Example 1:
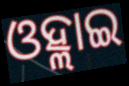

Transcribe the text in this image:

ଓହ୍ଲାଇ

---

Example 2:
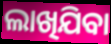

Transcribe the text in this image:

ଲାଖିଯିବା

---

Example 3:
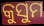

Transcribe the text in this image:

କୁସୁମ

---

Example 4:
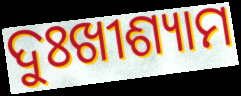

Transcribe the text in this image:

ଦୁଃଖୀଶ୍ୟାମ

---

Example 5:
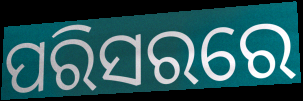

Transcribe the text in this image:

ପରିସରରେ